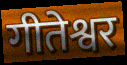
गीतेश्वर